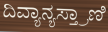
ದಿವ್ಯಾನ್ಯಸ್ತ್ರಾಣಿ